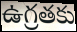
ఉగ్రతకు